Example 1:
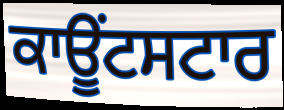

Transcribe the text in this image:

ਕਾਊਂਟਸਟਾਰ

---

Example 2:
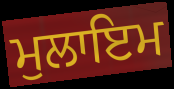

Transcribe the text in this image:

ਮੁਲਾਇਮ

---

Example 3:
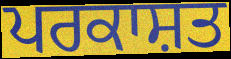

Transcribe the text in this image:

ਪਰਕਾਸ਼ਤ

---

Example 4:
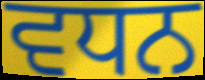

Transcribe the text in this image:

ਵਧਨ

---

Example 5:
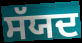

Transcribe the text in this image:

ਸੱਯਦ